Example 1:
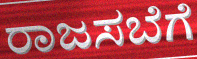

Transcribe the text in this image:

ರಾಜಸಬೆಗೆ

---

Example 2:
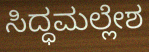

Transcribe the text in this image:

ಸಿದ್ಧಮಲ್ಲೇಶ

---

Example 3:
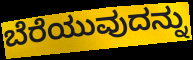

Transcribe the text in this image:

ಬೆರೆಯುವುದನ್ನು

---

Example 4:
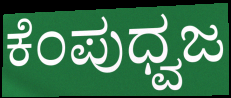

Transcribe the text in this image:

ಕೆಂಪುಧ್ವಜ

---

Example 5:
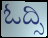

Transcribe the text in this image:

ಓದ್ಸಿ